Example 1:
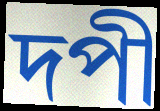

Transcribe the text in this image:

দপী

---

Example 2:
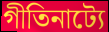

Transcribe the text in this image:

গীতিনাট্যে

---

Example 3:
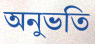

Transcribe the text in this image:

অনুভতি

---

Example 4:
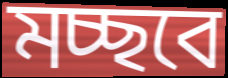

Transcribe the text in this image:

মচ্ছবে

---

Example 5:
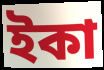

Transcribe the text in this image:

ইকা